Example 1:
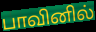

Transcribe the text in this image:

பாவினில்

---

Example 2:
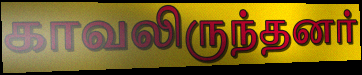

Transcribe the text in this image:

காவலிருந்தனர்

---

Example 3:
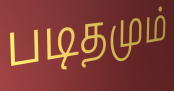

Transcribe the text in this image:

படிதமும்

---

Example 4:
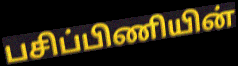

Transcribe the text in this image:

பசிப்பிணியின்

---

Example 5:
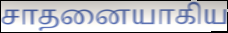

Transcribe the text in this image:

சாதனையாகிய